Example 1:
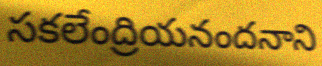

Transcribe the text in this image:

సకలేంద్రియనందనాని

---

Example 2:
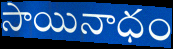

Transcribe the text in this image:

సాయినాధం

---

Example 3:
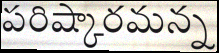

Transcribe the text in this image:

పరిష్కారమన్న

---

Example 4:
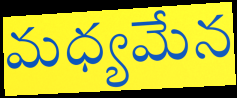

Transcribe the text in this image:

మధ్యమేన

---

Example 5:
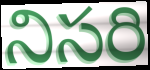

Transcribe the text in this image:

నిసరి